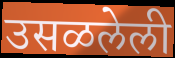
उसळलेली